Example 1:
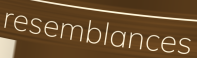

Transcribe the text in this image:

resemblances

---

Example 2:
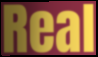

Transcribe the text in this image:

Real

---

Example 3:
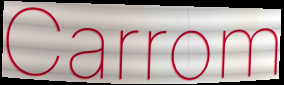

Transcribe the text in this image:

Carrom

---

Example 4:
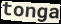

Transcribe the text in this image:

tonga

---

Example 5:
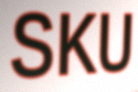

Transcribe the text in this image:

SKU